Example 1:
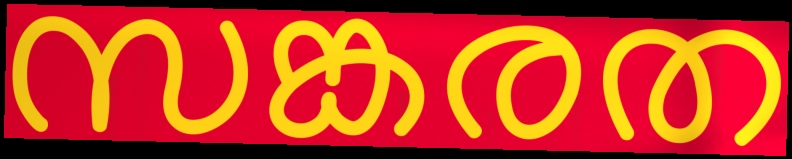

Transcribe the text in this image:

സങ്കരത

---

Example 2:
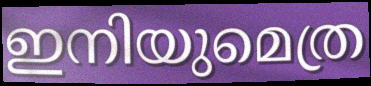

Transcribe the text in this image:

ഇനിയുമെത്ര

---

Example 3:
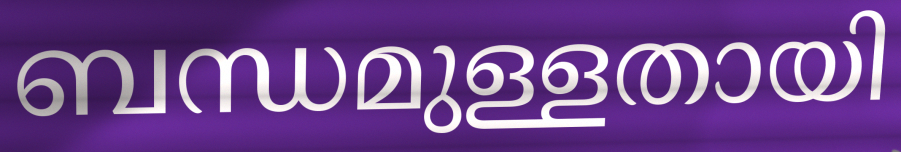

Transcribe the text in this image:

ബന്ധമുള്ളതായി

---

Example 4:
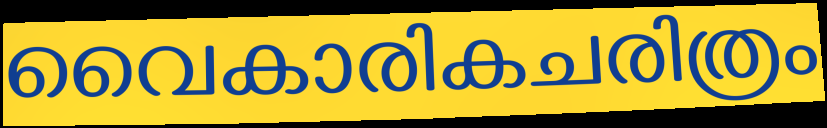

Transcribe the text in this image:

വൈകാരികചരിത്രം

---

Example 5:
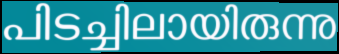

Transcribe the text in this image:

പിടച്ചിലായിരുന്നു